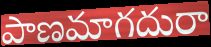
పాణమాగదురా